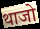
थाजो